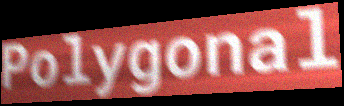
Polygonal